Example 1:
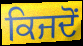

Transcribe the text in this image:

ਕਿਜਦੋਂ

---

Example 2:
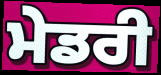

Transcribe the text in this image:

ਮੇਡਰੀ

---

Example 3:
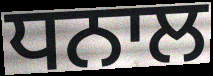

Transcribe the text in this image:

ਧਨਾਲ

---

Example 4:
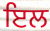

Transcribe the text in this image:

ਇਲ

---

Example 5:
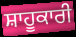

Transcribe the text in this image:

ਸ਼ਾਹੂਕਾਰੀ